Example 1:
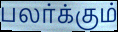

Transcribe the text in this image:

பலர்க்கும்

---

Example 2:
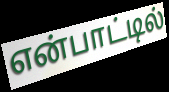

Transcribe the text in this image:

என்பாட்டில்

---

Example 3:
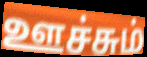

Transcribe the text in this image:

ஊச்சும்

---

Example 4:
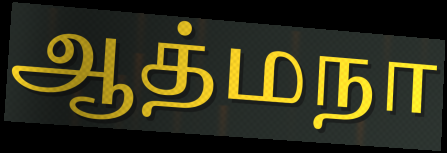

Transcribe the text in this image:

ஆத்மநா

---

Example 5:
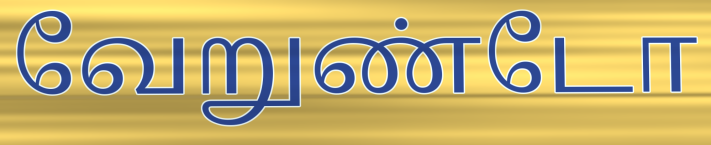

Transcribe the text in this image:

வேறுண்டோ